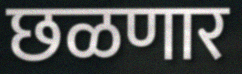
छळणार